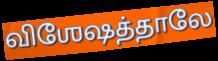
விஶேஷத்தாலே